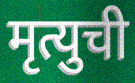
मृत्युची